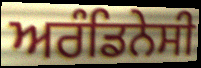
ਅਰੰਡਿਨੇਸੀ